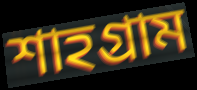
শাহগ্রাম